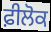
ਫ਼ੀਲੋਕ